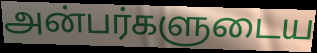
அன்பர்களுடைய